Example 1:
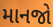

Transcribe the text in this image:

માનજો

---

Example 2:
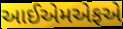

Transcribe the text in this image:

આઈએમએફએ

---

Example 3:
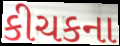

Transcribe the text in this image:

કીચકના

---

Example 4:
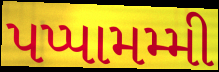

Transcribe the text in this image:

પપ્પામમ્મી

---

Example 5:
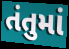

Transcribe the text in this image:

તંતુમાં